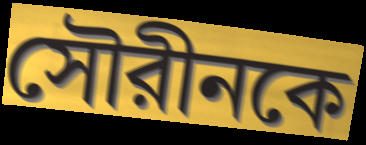
সৌরীনকে